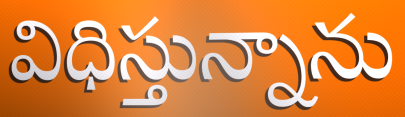
విధిస్తున్నాను